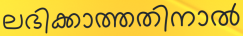
ലഭിക്കാത്തതിനാൽ